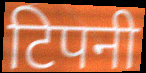
टिपनी